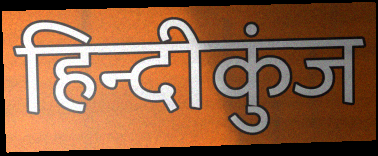
हिन्दीकुंज